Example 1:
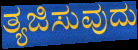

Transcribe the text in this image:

ತ್ಯಜಿಸುವುದು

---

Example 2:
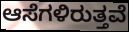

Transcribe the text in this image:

ಆಸೆಗಳಿರುತ್ತವೆ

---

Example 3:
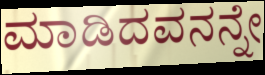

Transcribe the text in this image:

ಮಾಡಿದವನನ್ನೇ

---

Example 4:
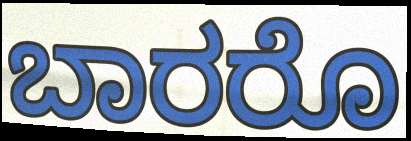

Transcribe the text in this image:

ಬಾರರೊ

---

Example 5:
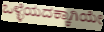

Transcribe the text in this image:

ಒಳ್ಳೆಯದಕ್ಕಾಗಿಯೇ